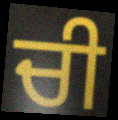
ਚੀ